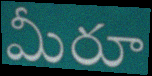
మీరూ